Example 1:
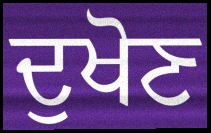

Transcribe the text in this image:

ਦੁਖੋਣ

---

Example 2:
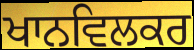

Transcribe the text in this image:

ਖਾਨਵਿਲਕਰ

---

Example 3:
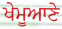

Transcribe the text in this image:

ਖੇਮੂਆਣੇ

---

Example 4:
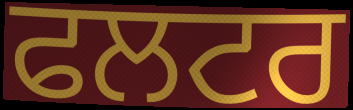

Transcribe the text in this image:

ਫਲਟਰ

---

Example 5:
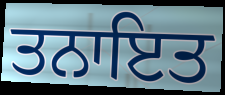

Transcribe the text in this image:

ਤਨਾਇਤ